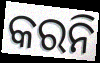
କରନି